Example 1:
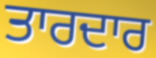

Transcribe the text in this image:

ਤਾਰਦਾਰ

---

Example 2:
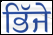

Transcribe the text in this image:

ਭਿੱਜੇ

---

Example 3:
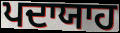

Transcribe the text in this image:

ਪਦਾਯਾਹ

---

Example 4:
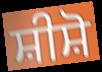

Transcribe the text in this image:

ਸ਼ੀਸ਼ੋ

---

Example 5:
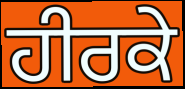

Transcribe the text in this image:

ਹੀਰਕੇ